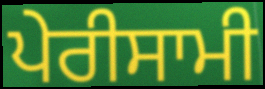
ਪੇਰੀਸਾਮੀ